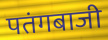
पतंगबाजी